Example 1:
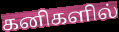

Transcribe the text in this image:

கனிகளில்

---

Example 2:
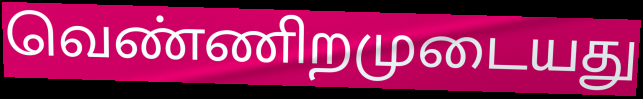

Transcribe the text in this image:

வெண்ணிறமுடையது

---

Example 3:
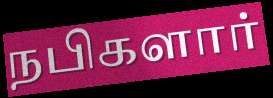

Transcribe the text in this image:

நபிகளார்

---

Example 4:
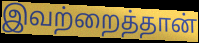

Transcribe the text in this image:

இவற்றைத்தான்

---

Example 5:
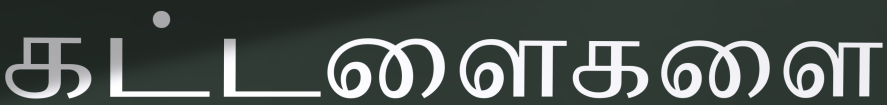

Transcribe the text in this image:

கட்டளைகளை